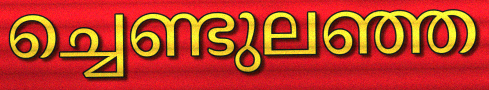
ച്ചെണ്ടുലഞ്ഞ